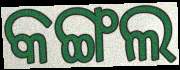
କଙ୍ଗଲ